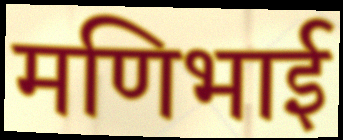
मणिभाई